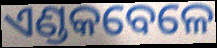
ଏଣ୍ଡକବେଳେ